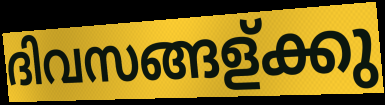
ദിവസങ്ങള്ക്കു